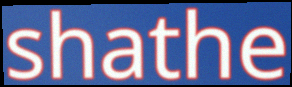
shathe